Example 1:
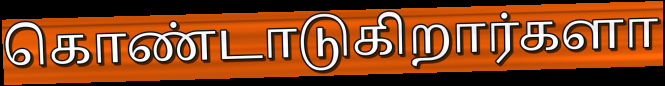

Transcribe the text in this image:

கொண்டாடுகிறார்களா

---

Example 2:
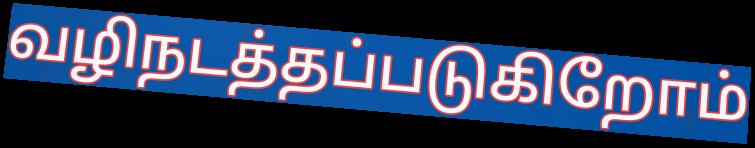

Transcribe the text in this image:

வழிநடத்தப்படுகிறோம்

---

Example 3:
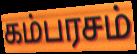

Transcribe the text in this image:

கம்பரசம்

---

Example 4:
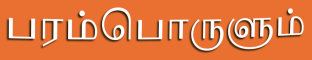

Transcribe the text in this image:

பரம்பொருளும்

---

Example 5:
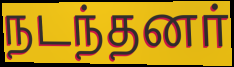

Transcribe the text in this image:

நடந்தனர்